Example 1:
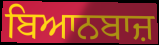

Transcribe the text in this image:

ਬਿਆਨਬਾਜ਼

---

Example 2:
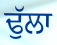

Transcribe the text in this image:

ਢੁੱਲਾ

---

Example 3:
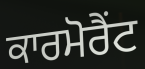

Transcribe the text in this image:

ਕਾਰਮੋਰੈਂਟ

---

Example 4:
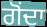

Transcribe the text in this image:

ਗੋਂਦਾ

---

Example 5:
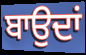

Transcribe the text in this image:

ਬਾਉਦਾਂ